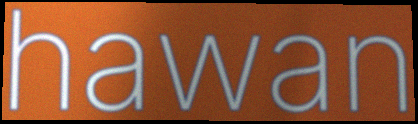
hawan